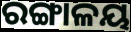
ରଙ୍ଗାଳୟ